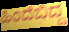
ಹಿಂದೆಬಿದ್ದ